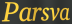
Parsva